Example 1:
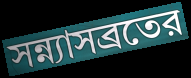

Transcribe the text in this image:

সন্ন্যাসব্রতের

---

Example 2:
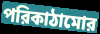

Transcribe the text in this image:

পরিকাঠামোর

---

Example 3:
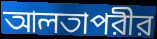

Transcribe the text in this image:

আলতাপরীর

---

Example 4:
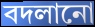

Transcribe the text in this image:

বদলানো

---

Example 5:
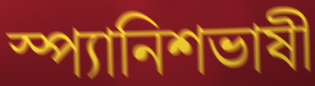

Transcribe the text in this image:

স্প্যানিশভাষী